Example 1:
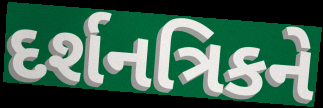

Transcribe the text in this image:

દર્શનત્રિકને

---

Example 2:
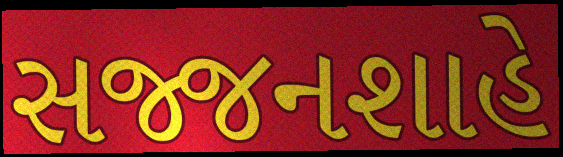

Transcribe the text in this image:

સજ્જનશાહે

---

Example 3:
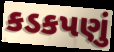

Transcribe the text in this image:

કડકપણું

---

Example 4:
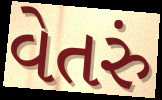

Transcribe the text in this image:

વેતરું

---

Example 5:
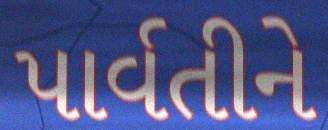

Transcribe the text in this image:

પાર્વતીને